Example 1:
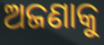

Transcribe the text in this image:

ଅଜଣାକୁ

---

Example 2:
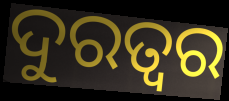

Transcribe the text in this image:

ଦୁରତ୍ଵର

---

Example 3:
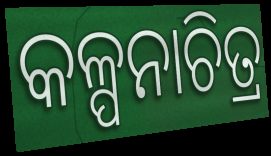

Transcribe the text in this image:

କଳ୍ପନାଚିତ୍ର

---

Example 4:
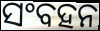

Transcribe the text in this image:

ସଂବହନ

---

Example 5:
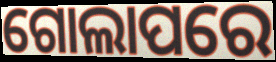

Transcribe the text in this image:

ଗୋଲାପରେ